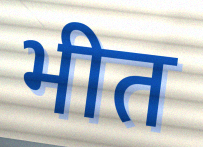
भीत